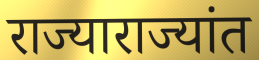
राज्याराज्यांत